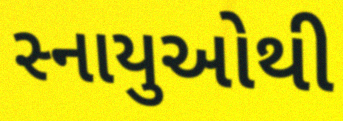
સ્નાયુઓથી